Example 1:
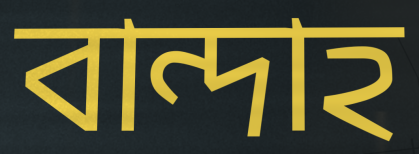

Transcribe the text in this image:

বান্দাহ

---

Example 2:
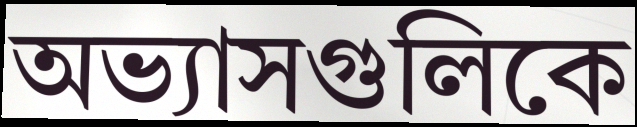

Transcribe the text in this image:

অভ্যাসগুলিকে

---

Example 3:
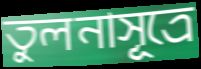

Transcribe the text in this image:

তুলনাসূত্রে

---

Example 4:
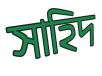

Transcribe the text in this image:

সাহিদ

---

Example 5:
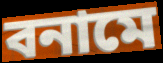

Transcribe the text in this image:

বনামে